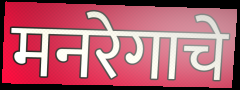
मनरेगाचे